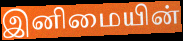
இனிமையின்